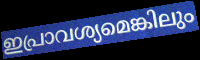
ഇപ്രാവശ്യമെങ്കിലും